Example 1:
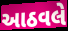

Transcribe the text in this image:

આઠવલે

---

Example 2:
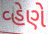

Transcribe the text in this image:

વ્હેણે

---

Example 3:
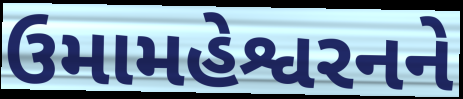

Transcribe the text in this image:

ઉમામહેશ્વરનને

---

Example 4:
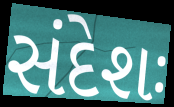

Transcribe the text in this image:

સંદેશઃ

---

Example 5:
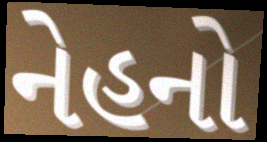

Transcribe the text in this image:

નેહનો